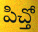
పిచ్తో